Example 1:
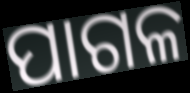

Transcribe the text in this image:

ପାଗଳ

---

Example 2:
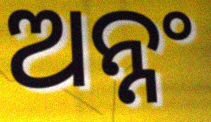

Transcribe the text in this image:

ଅନ୍ନଂ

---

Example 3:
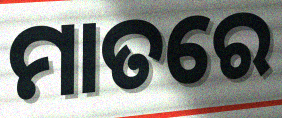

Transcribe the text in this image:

ମାତରେ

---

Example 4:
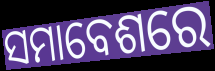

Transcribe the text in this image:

ସମାବେଶରେ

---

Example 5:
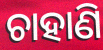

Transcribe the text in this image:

ଚାହାଣି